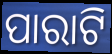
ପାରାଟି